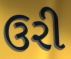
ઉરી